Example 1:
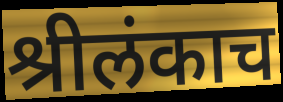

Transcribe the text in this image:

श्रीलंकाच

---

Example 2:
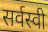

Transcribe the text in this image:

सर्वस्वी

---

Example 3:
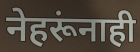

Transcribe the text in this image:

नेहरूंनाही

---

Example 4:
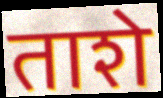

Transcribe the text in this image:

ताशे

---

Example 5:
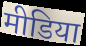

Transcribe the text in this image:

मीडिया